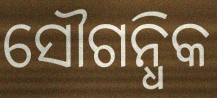
ସୌଗନ୍ଧିକ